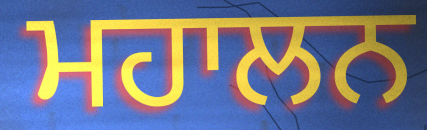
ਮਹਾਲਨ